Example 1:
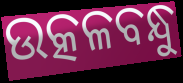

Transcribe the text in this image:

ଉତ୍କଳବନ୍ଧୁ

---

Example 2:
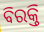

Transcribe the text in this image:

ବିରକ୍ତି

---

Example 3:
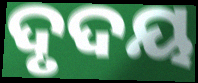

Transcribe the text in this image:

ଦୃଦୟ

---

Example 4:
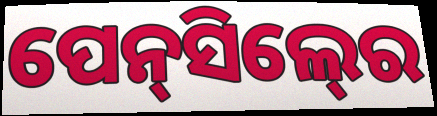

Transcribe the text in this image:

ପେନ୍‍ସିଲ୍‍ରେ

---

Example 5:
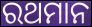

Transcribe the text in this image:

ରଥମାନ